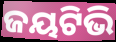
ଜୟଟିଭି